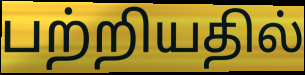
பற்றியதில்